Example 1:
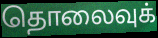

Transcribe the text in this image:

தொலைவுக்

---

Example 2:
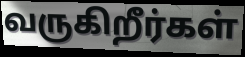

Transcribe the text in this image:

வருகிறீர்கள்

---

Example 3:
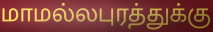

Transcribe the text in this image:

மாமல்லபுரத்துக்கு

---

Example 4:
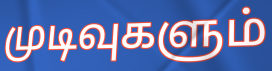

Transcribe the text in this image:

முடிவுகளும்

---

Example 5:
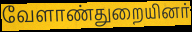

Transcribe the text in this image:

வேளாண்துறையினர்